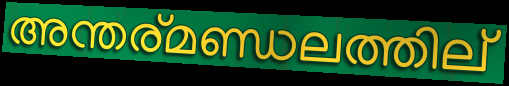
അന്തര്മണ്ഡലത്തില്